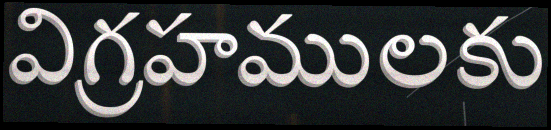
విగ్రహములకు